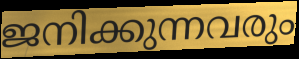
ജനിക്കുന്നവരും